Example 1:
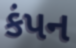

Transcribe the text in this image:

કંપન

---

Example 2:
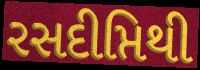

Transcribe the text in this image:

રસદીપ્તિથી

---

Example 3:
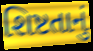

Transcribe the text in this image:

શિષ્ટતાનું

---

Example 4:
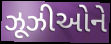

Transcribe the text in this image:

ઝૂઝીઓને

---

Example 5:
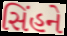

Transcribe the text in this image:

સિંહને